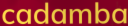
cadamba